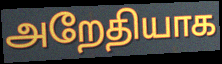
அறேதியாக